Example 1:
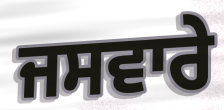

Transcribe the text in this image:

ਜਸਵਾਰੇ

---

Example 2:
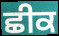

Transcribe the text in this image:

ਛੀਕ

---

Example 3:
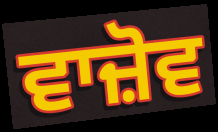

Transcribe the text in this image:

ਵਾਜ਼ੋਵ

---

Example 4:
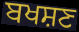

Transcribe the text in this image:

ਬਖਸ਼ਣ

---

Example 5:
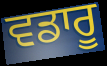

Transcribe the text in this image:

ਵਡਾਰੂ